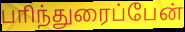
பரிந்துரைப்பேன்